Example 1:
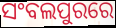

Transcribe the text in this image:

ସଂବଲପୁରରେ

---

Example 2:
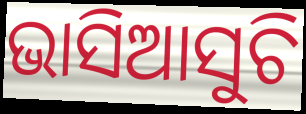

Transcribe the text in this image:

ଭାସିଆସୁଚି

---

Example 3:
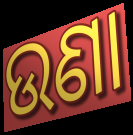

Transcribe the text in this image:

ଉଣା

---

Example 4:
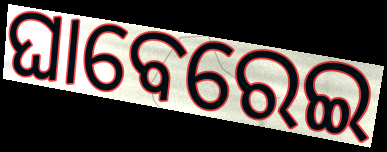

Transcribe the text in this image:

ଘାବେରେଇ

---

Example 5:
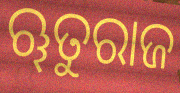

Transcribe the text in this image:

ୠତୁରାଜ